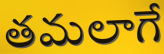
తమలాగే